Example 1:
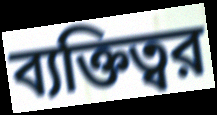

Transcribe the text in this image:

ব্যক্তিত্বর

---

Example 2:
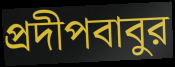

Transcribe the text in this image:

প্রদীপবাবুর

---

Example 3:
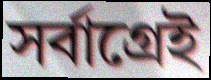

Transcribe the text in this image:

সর্বাগ্রেই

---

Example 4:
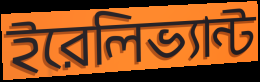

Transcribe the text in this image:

ইরেলিভ্যান্ট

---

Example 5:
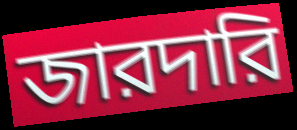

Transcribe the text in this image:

জারদারি